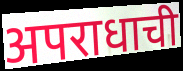
अपराधाची